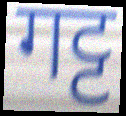
गट्ट